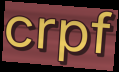
crpf